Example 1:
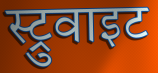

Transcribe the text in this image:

स्ट्रुवाइट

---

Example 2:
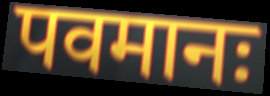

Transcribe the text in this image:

पवमानः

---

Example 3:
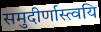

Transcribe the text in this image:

समुदीर्णास्त्वयि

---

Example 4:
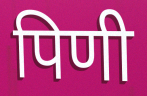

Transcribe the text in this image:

पिणी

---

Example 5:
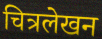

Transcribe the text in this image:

चित्रलेखन